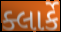
ક્લાર્કે